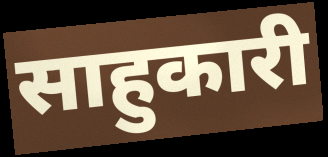
साहुकारी